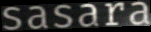
sasara